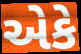
એકે